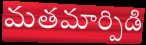
మతమార్పిడి